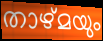
താഴ്മയും